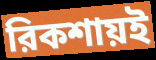
রিকশায়ই